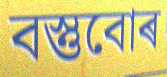
বস্তুবোৰ